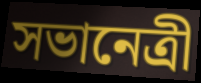
সভানেত্ৰী